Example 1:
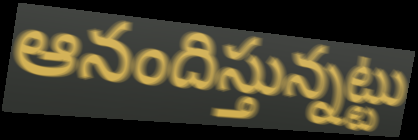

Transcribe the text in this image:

ఆనందిస్తున్నట్టు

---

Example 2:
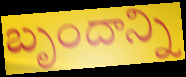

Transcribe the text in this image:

బృందాన్ని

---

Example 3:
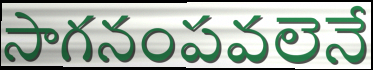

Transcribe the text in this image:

సాగనంపవలెనే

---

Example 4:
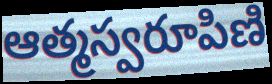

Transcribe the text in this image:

ఆత్మస్వరూపిణి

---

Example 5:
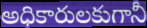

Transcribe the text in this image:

అధికారులకుగానీ